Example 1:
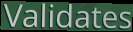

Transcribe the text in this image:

Validates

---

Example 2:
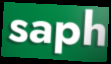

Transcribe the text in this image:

saph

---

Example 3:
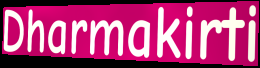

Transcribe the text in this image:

Dharmakirti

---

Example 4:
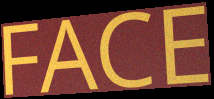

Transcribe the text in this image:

FACE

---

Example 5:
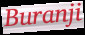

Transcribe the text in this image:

Buranji